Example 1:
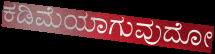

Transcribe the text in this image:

ಕಡಿಮೆಯಾಗುವುದೋ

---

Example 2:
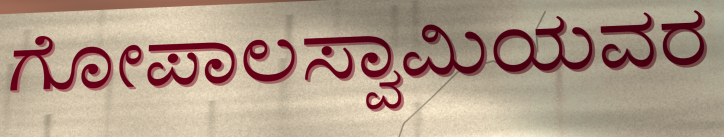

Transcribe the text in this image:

ಗೋಪಾಲಸ್ವಾಮಿಯವರ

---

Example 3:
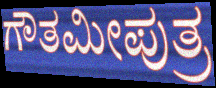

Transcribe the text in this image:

ಗೌತಮೀಪುತ್ರ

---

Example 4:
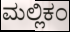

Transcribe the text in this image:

ಮಲ್ಲಿಕಂ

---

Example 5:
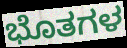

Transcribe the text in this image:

ಭೊತಗಳ